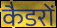
कैडरों